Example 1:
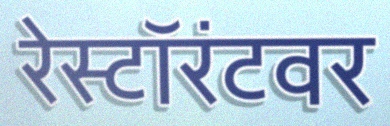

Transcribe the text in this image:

रेस्टॉरंटवर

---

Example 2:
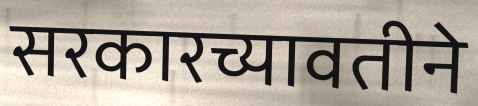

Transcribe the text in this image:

सरकारच्यावतीने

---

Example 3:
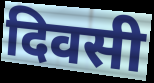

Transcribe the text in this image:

दिवसी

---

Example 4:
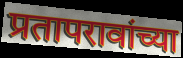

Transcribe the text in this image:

प्रतापरावांच्या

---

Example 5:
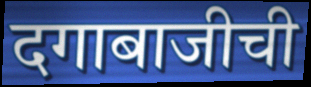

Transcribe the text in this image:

दगाबाजीची